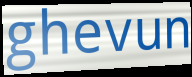
ghevun